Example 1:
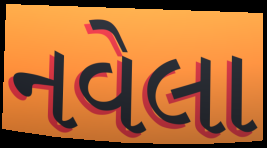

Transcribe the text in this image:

નવેલા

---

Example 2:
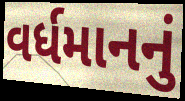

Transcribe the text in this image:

વર્ધમાનનું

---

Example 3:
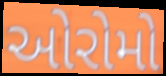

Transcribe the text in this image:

ઓરોમો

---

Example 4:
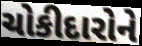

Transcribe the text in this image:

ચોકીદારોને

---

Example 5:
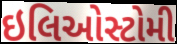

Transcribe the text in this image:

ઇલિઓસ્ટોમી